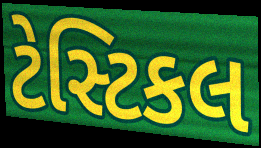
ટેસ્ટિકલ